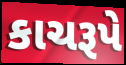
કાચરૂપે